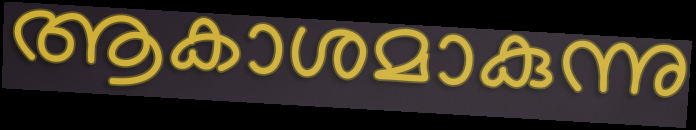
ആകാശമാകുന്നു